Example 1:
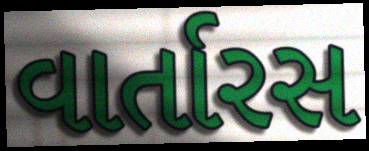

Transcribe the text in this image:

વાર્તારસ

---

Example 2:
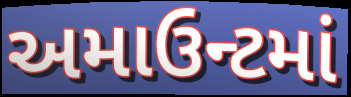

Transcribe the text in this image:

અમાઉન્ટમાં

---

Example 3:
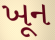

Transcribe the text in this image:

ખૂન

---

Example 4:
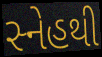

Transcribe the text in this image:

સ્નેહથી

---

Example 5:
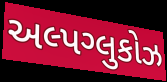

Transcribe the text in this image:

અલ્પગ્લુકોઝ